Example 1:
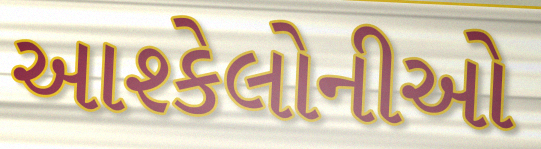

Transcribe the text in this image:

આશ્કેલોનીઓ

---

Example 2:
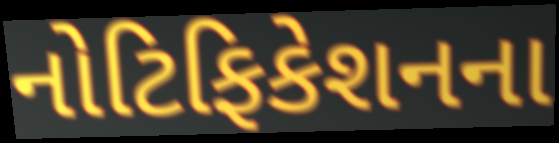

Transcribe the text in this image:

નોટિફિકેશનના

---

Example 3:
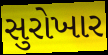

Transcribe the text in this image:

સુરોખાર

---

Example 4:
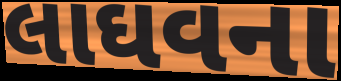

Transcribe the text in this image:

લાઘવના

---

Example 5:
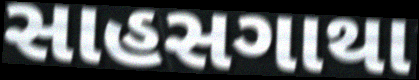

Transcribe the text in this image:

સાહસગાથા